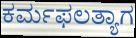
ಕರ್ಮಫಲತ್ಯಾಗ